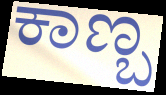
ಕಾಣ್ಬ